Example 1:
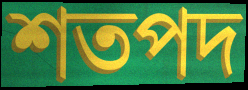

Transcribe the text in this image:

শতপদ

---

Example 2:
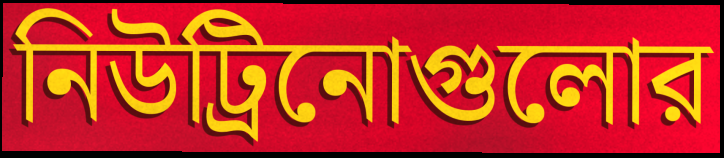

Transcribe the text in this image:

নিউট্রিনোগুলোর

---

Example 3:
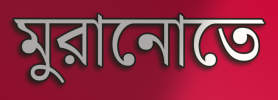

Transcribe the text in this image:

মুরানোতে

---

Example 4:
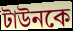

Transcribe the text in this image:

টাউনকে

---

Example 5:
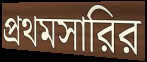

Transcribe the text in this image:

প্রথমসারির